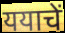
ययाचें